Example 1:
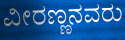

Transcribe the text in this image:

ವೀರಣ್ಣನವರು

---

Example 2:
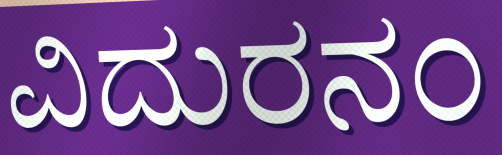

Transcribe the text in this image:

ವಿದುರನಂ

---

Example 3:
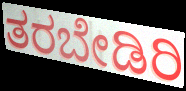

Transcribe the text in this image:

ತರಬೇಡಿರಿ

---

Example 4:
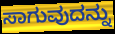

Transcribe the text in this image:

ಸಾಗುವುದನ್ನು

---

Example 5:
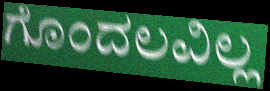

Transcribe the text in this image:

ಗೊಂದಲವಿಲ್ಲ